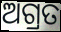
ଅଗ୍ରତ